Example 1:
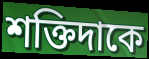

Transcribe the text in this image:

শক্তিদাকে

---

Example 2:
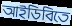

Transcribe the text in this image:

আইডিবিতে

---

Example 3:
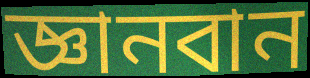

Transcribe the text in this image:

জ্ঞানবান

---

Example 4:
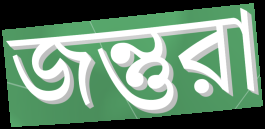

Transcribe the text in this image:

জন্তুরা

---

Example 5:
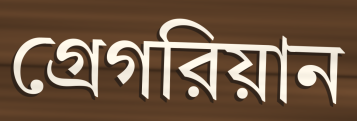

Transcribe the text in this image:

গ্রেগরিয়ান